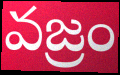
వజ్రం